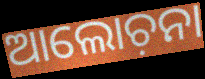
ଆଲୋଚ଼ନା